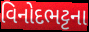
વિનોદભટ્ટના